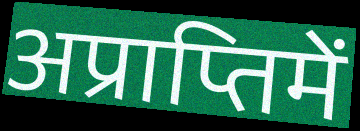
अप्राप्तिमें